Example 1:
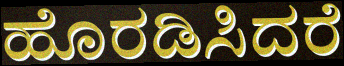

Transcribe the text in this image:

ಹೊರಡಿಸಿದರೆ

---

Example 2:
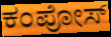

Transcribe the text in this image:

ಕಂಪೋಸ್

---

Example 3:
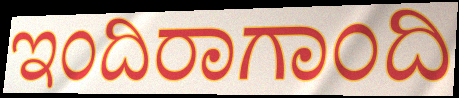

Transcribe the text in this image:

ಇಂದಿರಾಗಾಂದಿ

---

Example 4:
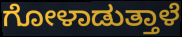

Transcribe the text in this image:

ಗೋಳಾಡುತ್ತಾಳೆ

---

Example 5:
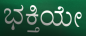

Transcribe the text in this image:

ಭಕ್ತಿಯೇ